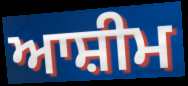
ਆਸ਼ੀਮ